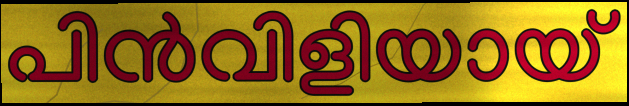
പിൻവിളിയായ്